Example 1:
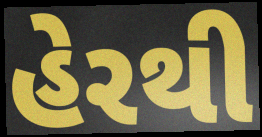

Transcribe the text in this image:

હેરથી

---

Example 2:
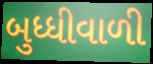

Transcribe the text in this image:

બુધ્ધીવાળી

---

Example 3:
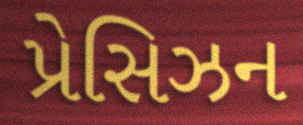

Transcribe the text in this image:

પ્રેસિઝન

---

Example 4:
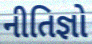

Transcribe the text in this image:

નીતિજ્ઞો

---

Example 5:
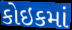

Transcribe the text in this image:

કોઇકમાં